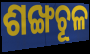
ଶଙ୍ଖଚୂଳ